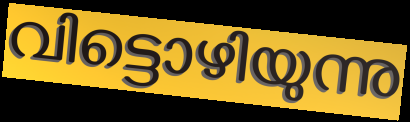
വിട്ടൊഴിയുന്നു